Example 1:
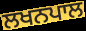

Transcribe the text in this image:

ਲਖਨਪਾਲ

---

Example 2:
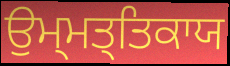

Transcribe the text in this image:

ਉਮ੍ਮਤ੍ਤਿਕਾਯ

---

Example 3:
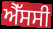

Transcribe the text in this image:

ਐੱਸਸੀ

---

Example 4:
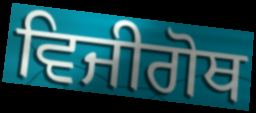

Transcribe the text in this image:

ਵਿਜੀਗੋਥ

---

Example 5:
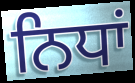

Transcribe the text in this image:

ਨਿਧਾਂ